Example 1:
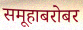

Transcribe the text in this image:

समूहाबरोबर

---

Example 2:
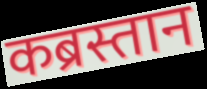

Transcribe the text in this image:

कब्रस्तान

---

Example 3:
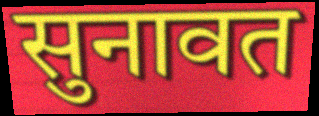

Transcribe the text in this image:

सुनावत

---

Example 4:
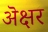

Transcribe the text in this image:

ऄक्षर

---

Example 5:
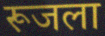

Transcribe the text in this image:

रूजला